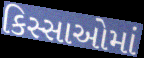
કિસ્સાઓમાં